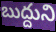
బుద్దుని